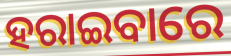
ହରାଇବାରେ